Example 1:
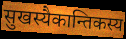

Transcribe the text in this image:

सुखस्यैकान्तिकस्य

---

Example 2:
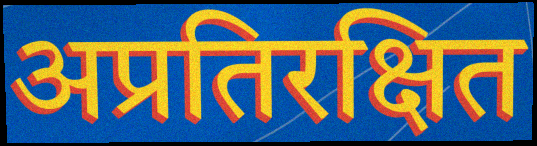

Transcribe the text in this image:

अप्रतिरक्षित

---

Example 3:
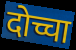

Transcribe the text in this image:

दोच्चा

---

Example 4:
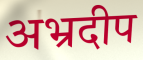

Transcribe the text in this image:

अभ्रदीप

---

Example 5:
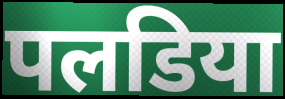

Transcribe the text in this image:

पलडिया